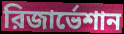
রিজার্ভেশান